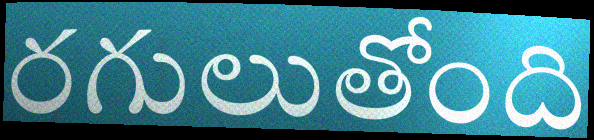
రగులుతోంది